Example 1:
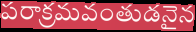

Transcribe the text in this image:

పరాక్రమవంతుడనైన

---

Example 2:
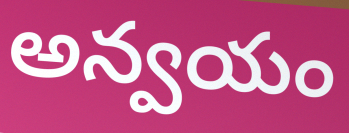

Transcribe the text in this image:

అన్వయం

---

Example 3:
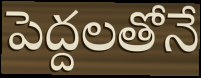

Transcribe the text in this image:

పెద్దలతోనే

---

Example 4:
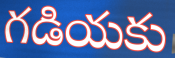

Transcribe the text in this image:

గడియకు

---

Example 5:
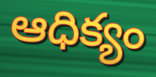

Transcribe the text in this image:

ఆధిక్యం